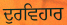
ਦੁਰਵਿਹਾਰ